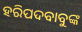
ହରିପଦବାବୁଙ୍କ